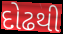
દોઢથી